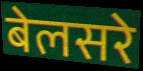
बेलसरे